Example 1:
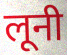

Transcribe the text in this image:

लूनी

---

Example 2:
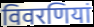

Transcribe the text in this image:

विवरणियां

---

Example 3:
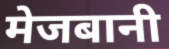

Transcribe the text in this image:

मेजबानी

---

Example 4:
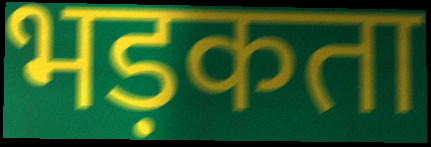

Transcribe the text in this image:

भड़कता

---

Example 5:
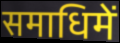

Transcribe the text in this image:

समाधिमें